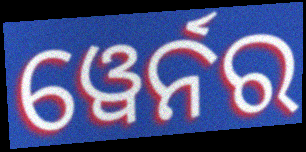
ୱେର୍ନର